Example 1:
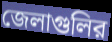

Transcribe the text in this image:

জেলাগুলির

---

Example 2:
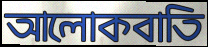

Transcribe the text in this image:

আলোকবাতি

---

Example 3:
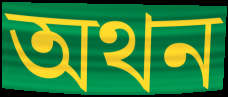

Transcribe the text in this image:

অথন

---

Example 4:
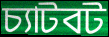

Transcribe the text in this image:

চ্যাটবট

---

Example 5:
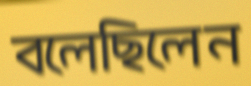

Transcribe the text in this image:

বলেছিলেন